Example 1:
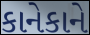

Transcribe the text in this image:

કાનેકાને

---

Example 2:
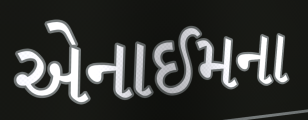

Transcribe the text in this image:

એનાઈમના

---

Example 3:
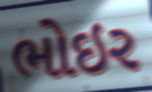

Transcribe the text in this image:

ભોઇર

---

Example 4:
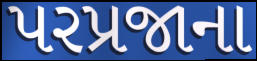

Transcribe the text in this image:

પરપ્રજાના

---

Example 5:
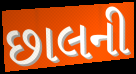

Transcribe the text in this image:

છાલની